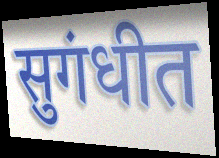
सुगंधीत